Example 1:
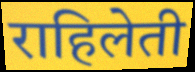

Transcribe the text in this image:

राहिलेती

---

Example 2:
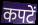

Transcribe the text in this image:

कपटें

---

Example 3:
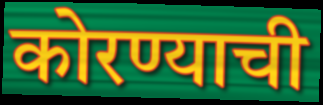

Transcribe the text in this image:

कोरण्याची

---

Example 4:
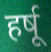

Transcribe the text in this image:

हर्षू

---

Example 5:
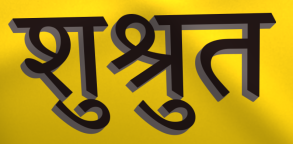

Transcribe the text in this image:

शुश्रुत